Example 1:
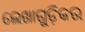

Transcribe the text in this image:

ଲେଖାଗୁଡ଼ିକର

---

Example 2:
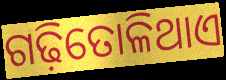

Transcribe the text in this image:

ଗଢ଼ିତୋଳିଥାଏ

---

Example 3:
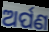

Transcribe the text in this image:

ଅର୍ପଣ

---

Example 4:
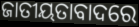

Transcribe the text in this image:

ଜାତୀୟତାବାଦରେ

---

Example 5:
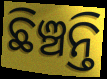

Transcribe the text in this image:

ଛିଞ୍ଚନ୍ତି